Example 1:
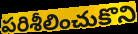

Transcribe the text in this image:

పరిశీలించుకొని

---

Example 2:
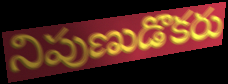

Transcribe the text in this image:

నిపుణుడొకరు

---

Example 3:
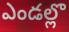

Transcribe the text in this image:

ఎండల్లొ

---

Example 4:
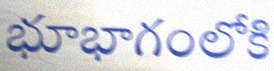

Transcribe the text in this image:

భూభాగంలోకి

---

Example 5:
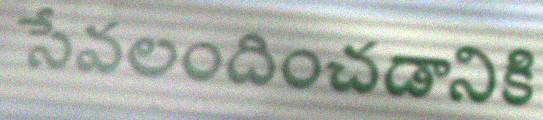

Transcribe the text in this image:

సేవలందించడానికి